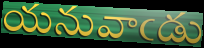
యనువాఁడు